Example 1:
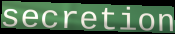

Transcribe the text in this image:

secretion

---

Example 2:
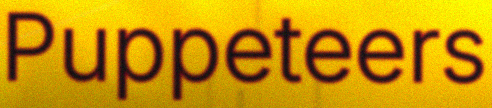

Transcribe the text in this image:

Puppeteers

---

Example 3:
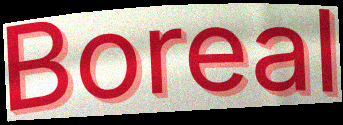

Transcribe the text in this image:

Boreal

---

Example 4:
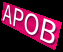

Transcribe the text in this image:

APOB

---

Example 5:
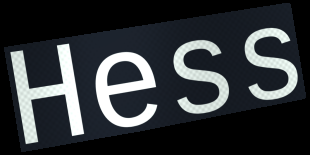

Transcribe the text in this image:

Hess